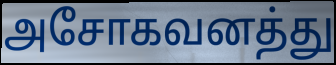
அசோகவனத்து